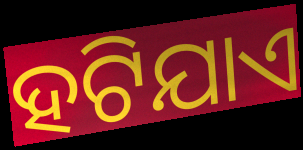
ହଟିଯାଏ